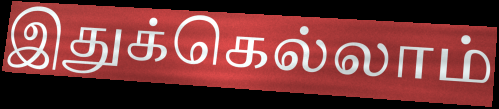
இதுக்கெல்லாம்